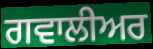
ਗਵਾਲੀਅਰ